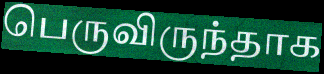
பெருவிருந்தாக